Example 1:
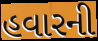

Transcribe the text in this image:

હવારની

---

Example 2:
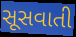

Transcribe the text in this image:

સૂસવાતી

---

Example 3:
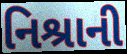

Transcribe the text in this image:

નિશ્રાની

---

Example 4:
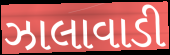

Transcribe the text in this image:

ઝાલાવાડી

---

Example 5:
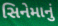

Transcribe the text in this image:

સિનેમાનું